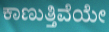
ಕಾಣುತ್ತಿವೆಯೇ